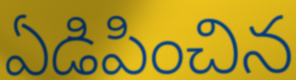
ఏడిపించిన